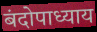
बंदोपाध्‍याय